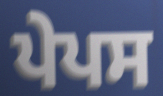
ਪੇਪਸ